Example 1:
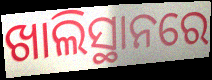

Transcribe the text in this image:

ଖାଲିସ୍ଥାନରେ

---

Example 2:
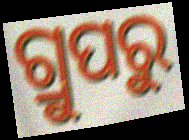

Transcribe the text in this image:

ଗ୍ରୁପରୁ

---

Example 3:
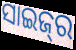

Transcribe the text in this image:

ସାଇଜ୍‌ର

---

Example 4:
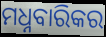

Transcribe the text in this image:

ମଧ୍ନବାରିକର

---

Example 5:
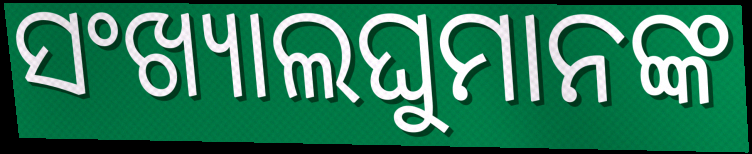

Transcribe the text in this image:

ସଂଖ୍ୟାଲଘୁମାନଙ୍କ